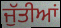
ਜੁੱਤੀਆਂ